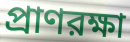
প্রাণরক্ষা